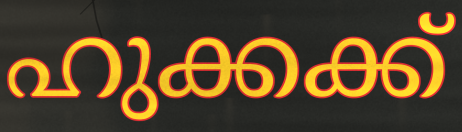
ഹുക്കക്ക്